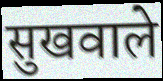
सुखवाले